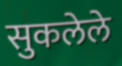
सुकलेले